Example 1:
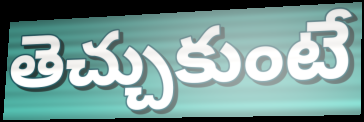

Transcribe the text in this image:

తెచ్చుకుంటే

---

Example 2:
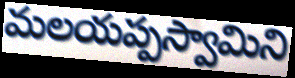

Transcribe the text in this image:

మలయప్పస్వామిని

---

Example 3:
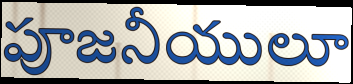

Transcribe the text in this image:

పూజనీయులూ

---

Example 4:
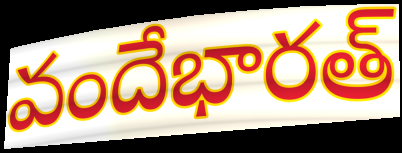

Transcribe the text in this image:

వందేభారత్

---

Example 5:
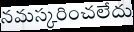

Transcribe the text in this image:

నమస్కరించలేదు